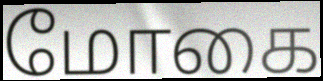
மோகை